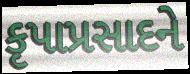
કૃપાપ્રસાદને